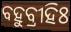
ବହୁବ୍ରୀହିଃ